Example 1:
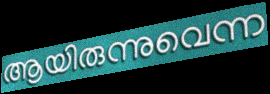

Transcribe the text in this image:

ആയിരുന്നുവെന്ന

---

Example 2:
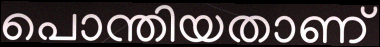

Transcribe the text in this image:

പൊന്തിയതാണ്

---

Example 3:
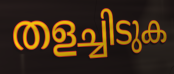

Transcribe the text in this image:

തളച്ചിടുക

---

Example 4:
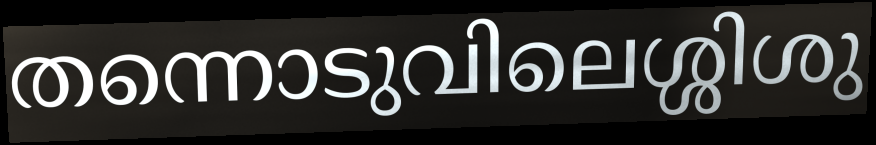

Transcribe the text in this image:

തന്നൊടുവിലെശ്ശിശു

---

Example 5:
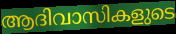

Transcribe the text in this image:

ആദിവാസികളുടെ